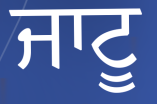
ਜਾਟੂ